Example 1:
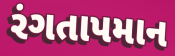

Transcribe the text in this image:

રંગતાપમાન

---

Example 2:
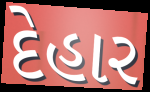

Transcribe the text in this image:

દેહાર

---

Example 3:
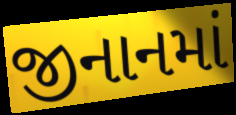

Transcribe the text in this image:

જીનાનમાં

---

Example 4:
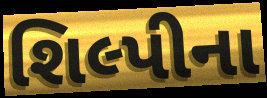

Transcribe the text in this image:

શિલ્પીના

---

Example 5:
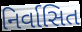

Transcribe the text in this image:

નિર્વાસિત